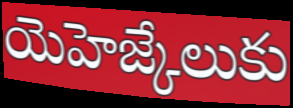
యెహెజ్కేలుకు